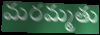
మరమ్మతు